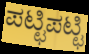
ಪಟ್ಟಿಪಟ್ಟಿ